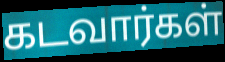
கடவார்கள்